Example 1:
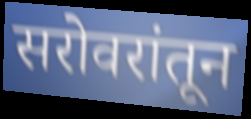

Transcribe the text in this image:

सरोवरांतून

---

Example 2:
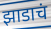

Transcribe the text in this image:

झाडाचं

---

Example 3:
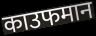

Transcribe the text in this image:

काउफमान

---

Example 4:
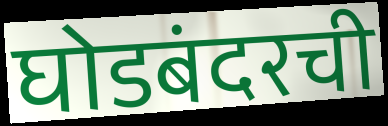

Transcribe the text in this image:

घोडबंदरची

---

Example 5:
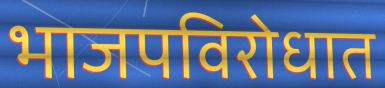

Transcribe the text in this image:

भाजपविरोधात